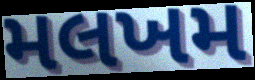
મલખમ